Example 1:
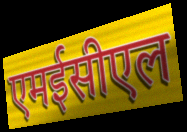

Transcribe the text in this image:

एमईसीएल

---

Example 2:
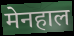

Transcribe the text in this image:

मेनहाल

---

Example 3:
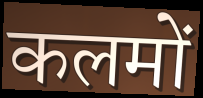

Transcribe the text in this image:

कलमों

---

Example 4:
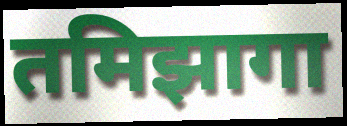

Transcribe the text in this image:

तमिझागा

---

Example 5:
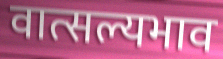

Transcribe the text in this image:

वात्सल्यभाव